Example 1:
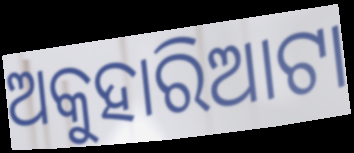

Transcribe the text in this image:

ଅକୁହାରିଆଟା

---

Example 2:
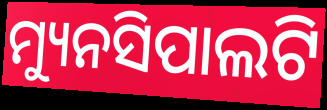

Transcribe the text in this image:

ମ୍ୟୁନସିପାଲଟି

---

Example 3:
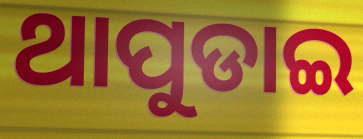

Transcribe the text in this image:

ଥାପୁଡାଇ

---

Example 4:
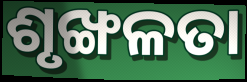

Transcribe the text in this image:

ଶୃଙ୍ଖଳତା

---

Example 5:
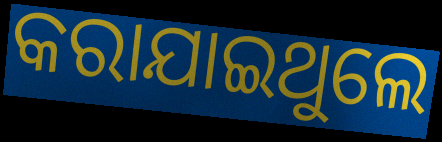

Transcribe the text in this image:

କରାଯାଇଥୁଲେ